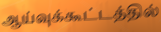
ஆய்வுக்கூட்டத்தில்